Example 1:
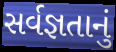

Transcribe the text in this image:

સર્વજ્ઞતાનું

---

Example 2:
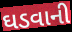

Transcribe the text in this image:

ઘડવાની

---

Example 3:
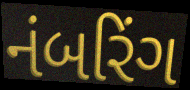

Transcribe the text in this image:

નંબરિંગ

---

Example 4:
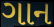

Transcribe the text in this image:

ગાન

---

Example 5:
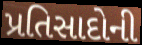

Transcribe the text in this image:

પ્રતિસાદોની